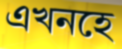
এখনহে